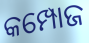
କମ୍ପୋଜ